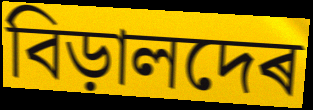
বিড়ালদেৰ